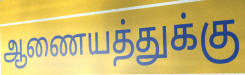
ஆணையத்துக்கு